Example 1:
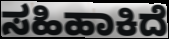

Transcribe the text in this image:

ಸಹಿಹಾಕಿದೆ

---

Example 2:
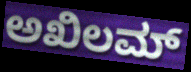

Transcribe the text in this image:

ಅಖಿಲಮ್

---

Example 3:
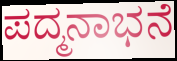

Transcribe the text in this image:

ಪದ್ಮನಾಭನೆ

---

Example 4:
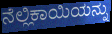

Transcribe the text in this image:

ನೆಲ್ಲಿಕಾಯಿಯನ್ನು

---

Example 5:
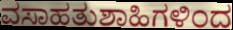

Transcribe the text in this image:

ವಸಾಹತುಶಾಹಿಗಳಿಂದ